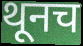
थूनच